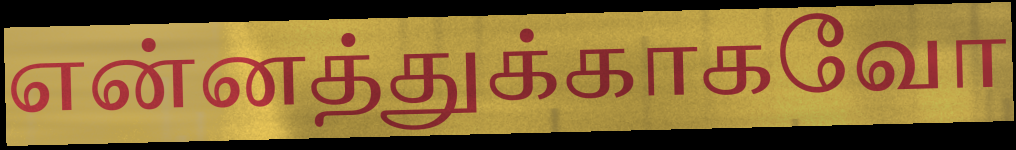
என்னத்துக்காகவோ